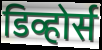
डिव्होर्स